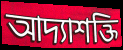
আদ্যাশক্তি